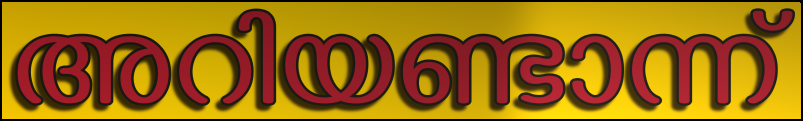
അറിയണ്ടാന്ന്